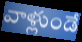
వాళ్లుండే